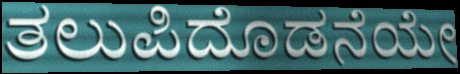
ತಲುಪಿದೊಡನೆಯೇ